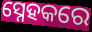
ସ୍ନେହକରେ